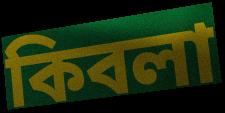
কিবলা